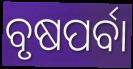
ବୃଷପର୍ବା